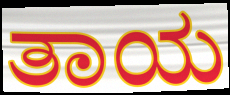
ತಾಯ